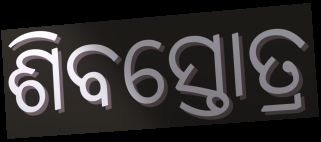
ଶିବସ୍ତୋତ୍ର